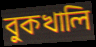
বুকখালি